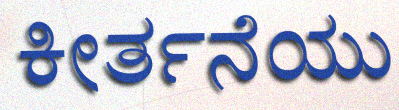
ಕೀರ್ತನೆಯು